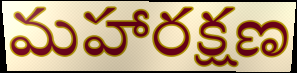
మహారక్షణ